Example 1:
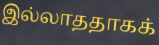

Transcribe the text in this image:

இல்லாததாகக்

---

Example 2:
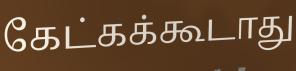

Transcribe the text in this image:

கேட்கக்கூடாது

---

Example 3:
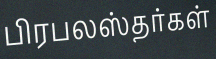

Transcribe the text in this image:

பிரபலஸ்தர்கள்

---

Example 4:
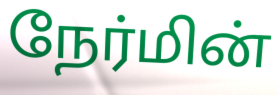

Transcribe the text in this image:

நேர்மின்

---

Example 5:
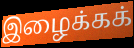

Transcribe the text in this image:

இழைக்கக்